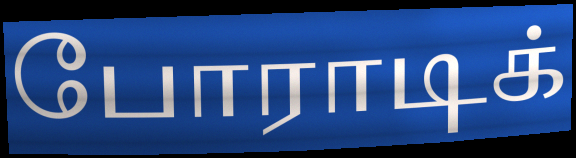
போராடிக்